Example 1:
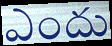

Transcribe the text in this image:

ఎందు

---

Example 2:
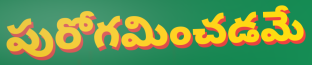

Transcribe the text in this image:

పురోగమించడమే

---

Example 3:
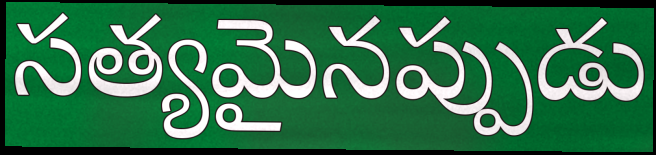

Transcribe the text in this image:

సత్యమైనప్పుడు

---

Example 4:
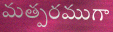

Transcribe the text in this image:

మత్పరముగా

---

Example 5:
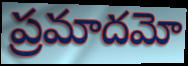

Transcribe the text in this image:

ప్రమాదమో